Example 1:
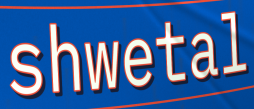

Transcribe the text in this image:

shwetal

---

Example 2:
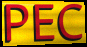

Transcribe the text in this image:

PEC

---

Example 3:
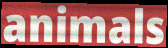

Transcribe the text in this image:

animals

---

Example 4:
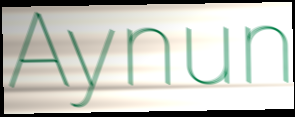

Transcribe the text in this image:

Aynun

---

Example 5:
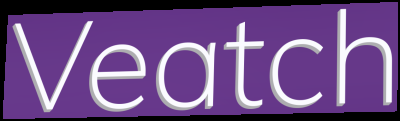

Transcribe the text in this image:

Veatch